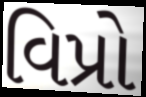
વિપ્રો